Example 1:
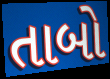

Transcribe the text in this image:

તાબો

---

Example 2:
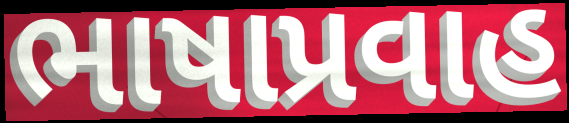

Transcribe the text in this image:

ભાષાપ્રવાહ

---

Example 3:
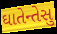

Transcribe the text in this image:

ઘાતેન્તેસુ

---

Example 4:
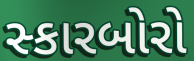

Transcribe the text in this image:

સ્કારબોરો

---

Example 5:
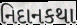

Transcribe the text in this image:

નિદાનકથા